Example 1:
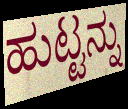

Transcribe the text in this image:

ಹುಟ್ಟನ್ನು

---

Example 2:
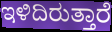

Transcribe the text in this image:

ಇಳಿದಿರುತ್ತಾರೆ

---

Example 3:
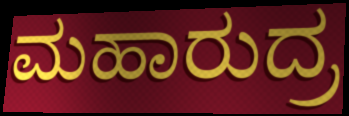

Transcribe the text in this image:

ಮಹಾರುದ್ರ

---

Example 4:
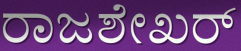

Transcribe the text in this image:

ರಾಜಶೇಖರ್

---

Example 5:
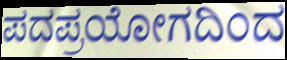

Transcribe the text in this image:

ಪದಪ್ರಯೋಗದಿಂದ